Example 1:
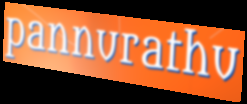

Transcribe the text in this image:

pannurathu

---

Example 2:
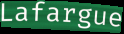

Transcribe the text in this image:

Lafargue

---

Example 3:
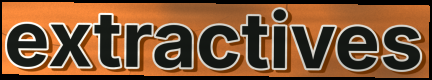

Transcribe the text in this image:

extractives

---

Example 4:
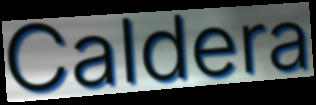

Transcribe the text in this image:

Caldera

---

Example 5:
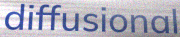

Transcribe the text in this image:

diffusional